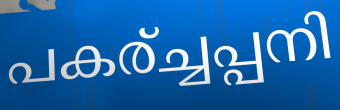
പകര്ച്ചപ്പനി